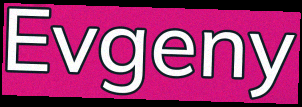
Evgeny